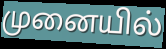
முனையில்